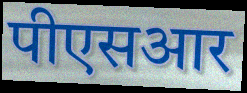
पीएसआर